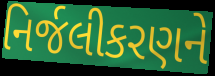
નિર્જલીકરણને